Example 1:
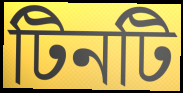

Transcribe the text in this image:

টিনটি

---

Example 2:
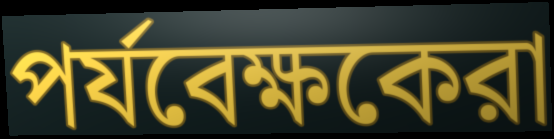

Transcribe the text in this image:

পর্যবেক্ষকেরা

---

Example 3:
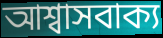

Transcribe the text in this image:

আশ্বাসবাক্য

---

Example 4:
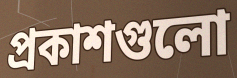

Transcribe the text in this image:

প্রকাশগুলো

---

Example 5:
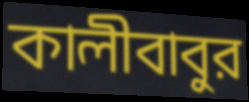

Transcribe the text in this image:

কালীবাবুর